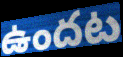
ఉందట